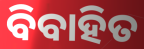
ବିବାହିତ